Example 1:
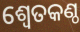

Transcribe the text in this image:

ଶ୍ୱେତକଣ୍ଠ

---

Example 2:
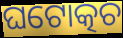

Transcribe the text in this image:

ଘଟୋତ୍କଚ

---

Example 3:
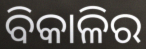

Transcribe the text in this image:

ବିକାଳିର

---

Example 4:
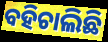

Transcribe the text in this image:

ବହିଚାଲିଛି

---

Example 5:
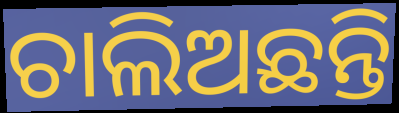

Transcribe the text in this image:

ଚାଲିଅଛନ୍ତି